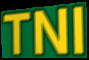
TNI